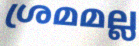
ശ്രമമല്ല